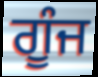
ਗੂੰਜ